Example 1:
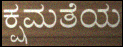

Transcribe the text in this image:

ಕ್ಷಮತೆಯ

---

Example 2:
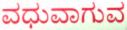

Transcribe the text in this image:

ವಧುವಾಗುವ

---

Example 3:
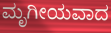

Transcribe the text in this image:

ಮೃಗೀಯವಾದ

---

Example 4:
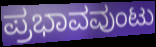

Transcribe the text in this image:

ಪ್ರಭಾವವುಂಟು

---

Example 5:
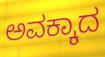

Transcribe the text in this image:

ಅವಕ್ಕಾದ